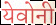
येवोनी